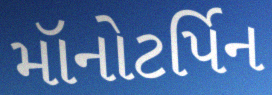
મૉનોટર્પિન